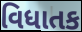
વિધાતક